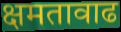
क्षमतावाढ